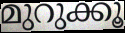
മുറുക്കൂ